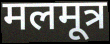
मलमूत्र